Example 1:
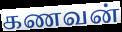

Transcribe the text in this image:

கணவன்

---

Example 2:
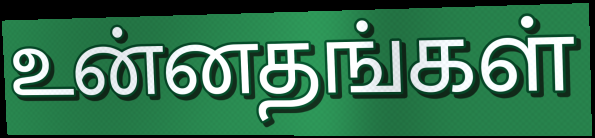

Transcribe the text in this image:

உன்னதங்கள்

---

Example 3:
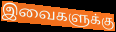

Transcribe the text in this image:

இவைகளுக்கு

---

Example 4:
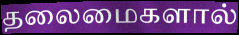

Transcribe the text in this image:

தலைமைகளால்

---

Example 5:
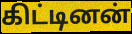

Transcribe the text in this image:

கிட்டினன்